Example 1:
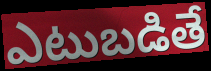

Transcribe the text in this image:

ఎటుబడితే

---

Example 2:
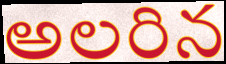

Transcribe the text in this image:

అలరిన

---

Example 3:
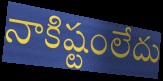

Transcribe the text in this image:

నాకిష్టంలేదు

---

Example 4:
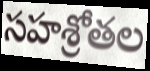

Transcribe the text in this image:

సహశ్రోతల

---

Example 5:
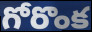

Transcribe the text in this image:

గోరొంక